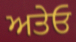
ਅਤੇਓ